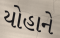
યોહાને